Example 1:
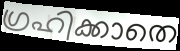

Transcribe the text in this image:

ഗ്രഹിക്കാതെ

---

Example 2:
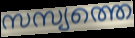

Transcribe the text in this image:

സസ്യത്തെ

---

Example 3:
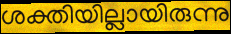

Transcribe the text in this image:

ശക്തിയില്ലായിരുന്നു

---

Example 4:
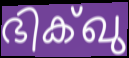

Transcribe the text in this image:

ഭിക്ഖു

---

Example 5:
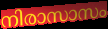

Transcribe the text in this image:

നിരാസാസം